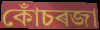
কোঁচৰজা